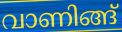
വാണിങ്ങ്